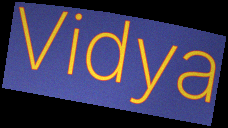
Vidya